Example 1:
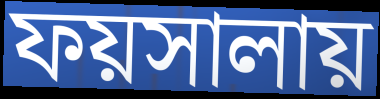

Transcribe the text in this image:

ফয়সালায়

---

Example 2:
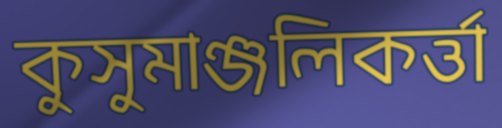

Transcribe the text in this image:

কুসুমাঞ্জলিকর্ত্তা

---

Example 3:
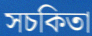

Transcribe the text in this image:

সচকিতা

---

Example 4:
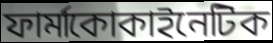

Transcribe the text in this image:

ফার্মাকোকাইনেটিক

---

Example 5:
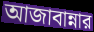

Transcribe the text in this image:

আজাবান্নার